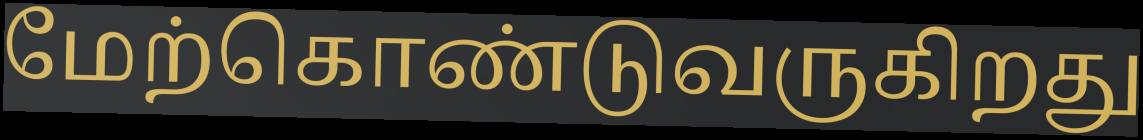
மேற்கொண்டுவருகிறது